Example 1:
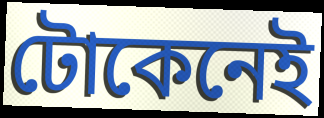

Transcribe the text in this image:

টোকেনেই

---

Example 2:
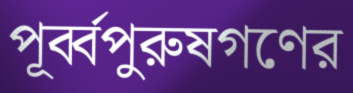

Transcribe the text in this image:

পূর্ব্বপুরুষগণের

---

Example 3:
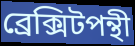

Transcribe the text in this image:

ব্রেক্সিটপন্থী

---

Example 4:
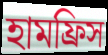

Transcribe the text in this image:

হামফ্রিস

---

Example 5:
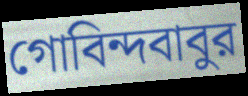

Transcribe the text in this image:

গোবিন্দবাবুর